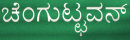
ಚೆಂಗುಟ್ಟವನ್